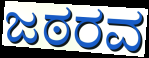
ಜಠರವ